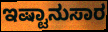
ಇಷ್ಟಾನುಸಾರ